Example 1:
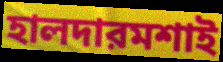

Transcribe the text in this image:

হালদারমশাই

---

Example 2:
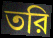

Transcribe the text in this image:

তরি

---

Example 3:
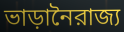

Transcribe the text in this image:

ভাড়ানৈরাজ্য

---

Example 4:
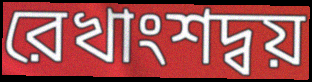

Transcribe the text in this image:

রেখাংশদ্বয়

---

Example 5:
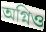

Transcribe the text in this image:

অগ্নিও